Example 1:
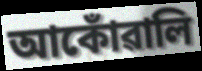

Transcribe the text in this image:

আকোঁৱালি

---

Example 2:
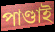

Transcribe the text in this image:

পাণ্ডাই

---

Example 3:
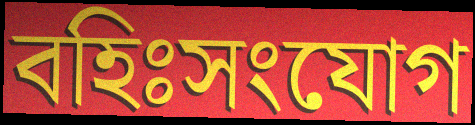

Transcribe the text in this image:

বহিঃসংযোগ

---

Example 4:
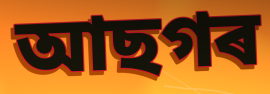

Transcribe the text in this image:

আছগৰ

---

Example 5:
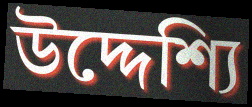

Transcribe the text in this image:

উদ্দেশ্যি